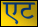
एट